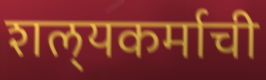
शल्यकर्माची